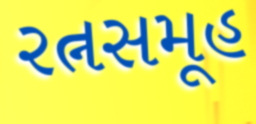
રત્નસમૂહ